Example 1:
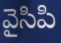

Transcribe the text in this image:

వైసిపి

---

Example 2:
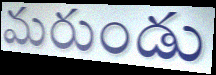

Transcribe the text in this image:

మరుండు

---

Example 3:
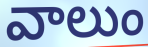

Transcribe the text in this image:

వాలుం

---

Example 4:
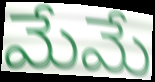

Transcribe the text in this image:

మేమే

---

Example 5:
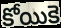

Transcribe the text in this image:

కోయికె